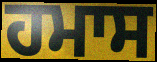
ਹਮਾਸ